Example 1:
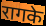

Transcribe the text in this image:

रागके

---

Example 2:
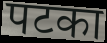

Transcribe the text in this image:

पटका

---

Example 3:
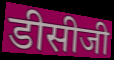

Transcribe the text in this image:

डीसीजी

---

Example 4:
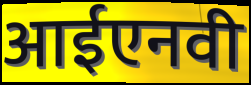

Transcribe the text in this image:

आईएनवी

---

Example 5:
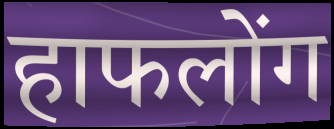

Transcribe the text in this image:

हाफलोंग